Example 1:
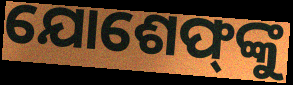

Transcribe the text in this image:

ଯୋଶେଫ୍‌ଙ୍କୁ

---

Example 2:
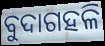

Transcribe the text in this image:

ବୁଦାଗହଳି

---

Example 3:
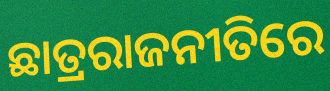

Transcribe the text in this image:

ଛାତ୍ରରାଜନୀତିରେ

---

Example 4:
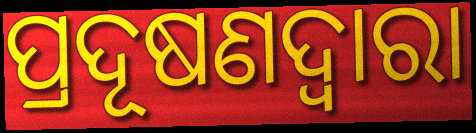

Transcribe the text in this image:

ପ୍ରଦୂଷଣଦ୍ବାରା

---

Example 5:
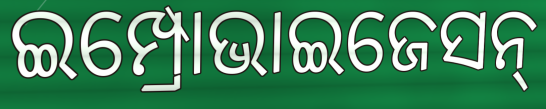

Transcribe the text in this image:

ଇମ୍ପ୍ରୋଭାଇଜେସନ୍